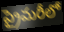
ప్రైమరీలో